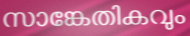
സാങ്കേതികവും